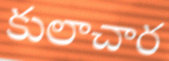
కులాచార